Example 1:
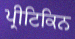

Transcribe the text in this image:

ਪ੍ਰੀਟਿਕਿਨ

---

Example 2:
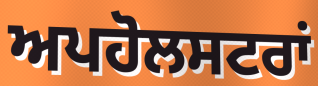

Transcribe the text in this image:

ਅਪਹੋਲਸਟਰਾਂ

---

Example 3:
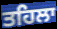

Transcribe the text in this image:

ਤਹਿਲਾ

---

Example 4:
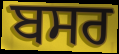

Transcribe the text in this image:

ਬਸਰ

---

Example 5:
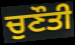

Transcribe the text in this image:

ਚੁਣੌਤੀ